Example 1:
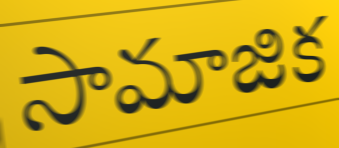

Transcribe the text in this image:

సామాజిక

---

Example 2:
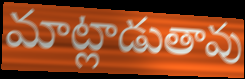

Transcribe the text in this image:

మాట్లాడుతావు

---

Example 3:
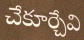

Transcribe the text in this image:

చేకూర్చేవి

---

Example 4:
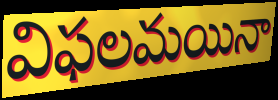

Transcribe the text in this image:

విఫలమయినా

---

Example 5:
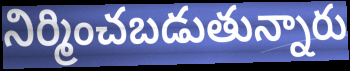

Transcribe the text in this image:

నిర్మించబడుతున్నారు